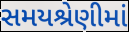
સમયશ્રેણીમાં